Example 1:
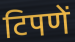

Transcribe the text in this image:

टिपणें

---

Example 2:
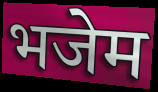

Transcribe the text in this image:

भजेम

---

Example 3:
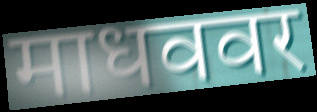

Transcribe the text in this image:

माधववर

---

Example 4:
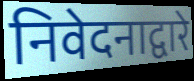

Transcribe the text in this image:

निवेदनाद्वारे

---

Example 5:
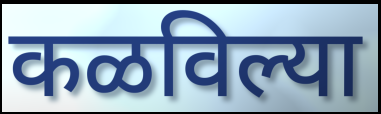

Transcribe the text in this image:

कळविल्या